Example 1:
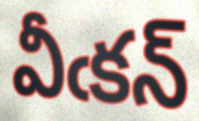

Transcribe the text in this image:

వీఁకన్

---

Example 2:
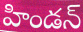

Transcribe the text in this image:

హిండన్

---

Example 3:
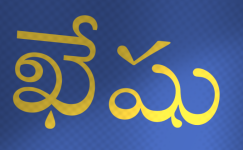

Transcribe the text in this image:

ఖేషు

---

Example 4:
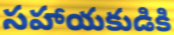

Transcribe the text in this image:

సహాయకుడికి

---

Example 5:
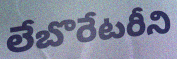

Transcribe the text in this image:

లేబొరేటరీని